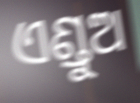
ଏଣ୍ଡୁଅ